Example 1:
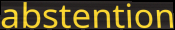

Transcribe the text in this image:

abstention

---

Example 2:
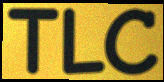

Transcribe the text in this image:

TLC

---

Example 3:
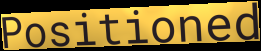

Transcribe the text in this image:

Positioned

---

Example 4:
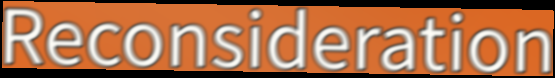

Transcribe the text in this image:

Reconsideration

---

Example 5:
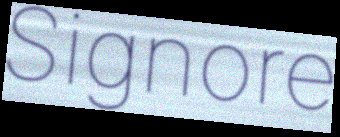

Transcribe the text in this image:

Signore